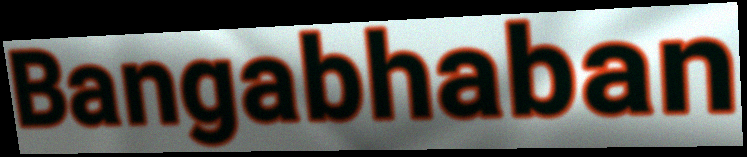
Bangabhaban